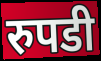
रुपडी